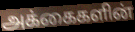
அக்கைகளின்